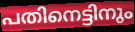
പതിനെട്ടിനും